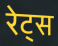
रेट्स